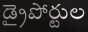
డ్రైపోర్టుల